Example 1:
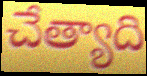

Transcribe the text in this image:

చేత్యాది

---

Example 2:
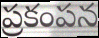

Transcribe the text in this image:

ప్రకంపన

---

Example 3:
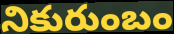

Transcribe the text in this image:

నికురుంబం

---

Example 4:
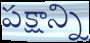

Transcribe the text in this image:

పక్షాన్ని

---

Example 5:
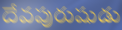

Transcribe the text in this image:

దేవపురుషుడు